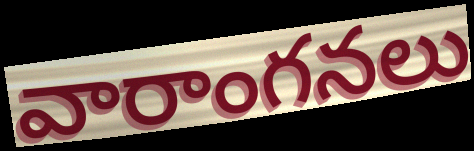
వారాంగనలు